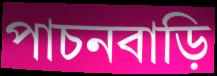
পাচনবাড়ি